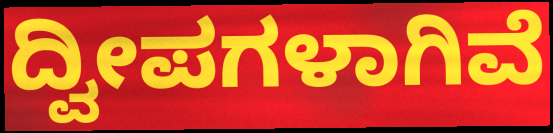
ದ್ವೀಪಗಳಾಗಿವೆ